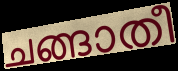
ചങ്ങാതീ